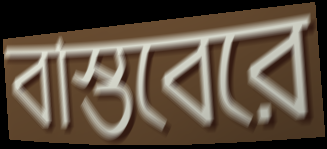
বাস্তবেরে